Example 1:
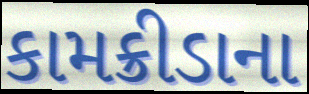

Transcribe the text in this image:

કામક્રીડાના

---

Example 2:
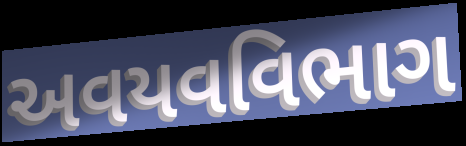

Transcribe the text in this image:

અવયવવિભાગ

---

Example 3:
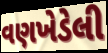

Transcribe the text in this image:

વણખેડેલી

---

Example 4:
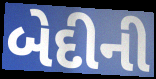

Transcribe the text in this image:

બેદીની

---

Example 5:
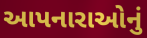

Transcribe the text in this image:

આપનારાઓનું